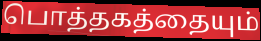
பொத்தகத்தையும்